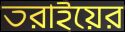
তরাইয়ের